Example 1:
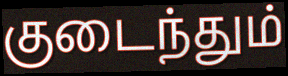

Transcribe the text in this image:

குடைந்தும்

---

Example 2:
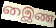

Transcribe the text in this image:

இைண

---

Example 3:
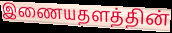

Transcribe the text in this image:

இணையதளத்தின்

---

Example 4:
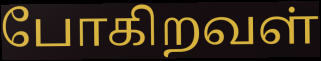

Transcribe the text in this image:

போகிறவள்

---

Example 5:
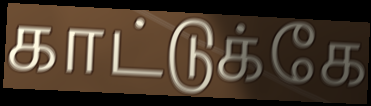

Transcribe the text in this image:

காட்டுக்கே